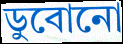
ডুবোনো